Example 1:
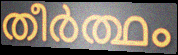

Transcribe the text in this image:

തീർത്ഥം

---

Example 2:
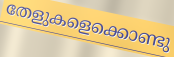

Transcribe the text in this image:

തേളുകളെക്കൊണ്ടു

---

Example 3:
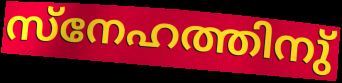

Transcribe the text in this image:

സ്നേഹത്തിനു്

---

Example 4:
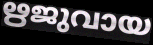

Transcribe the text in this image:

ഋജുവായ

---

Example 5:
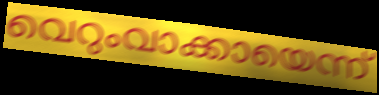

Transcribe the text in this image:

വെറുംവാക്കായെന്ന്